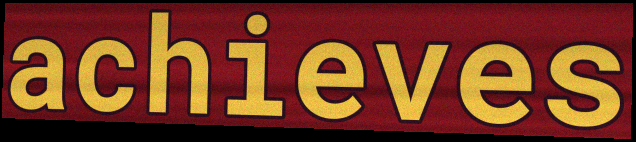
achieves